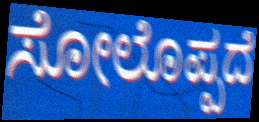
ಸೋಲೊಪ್ಪದೆ